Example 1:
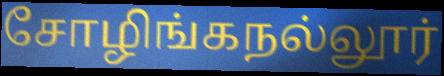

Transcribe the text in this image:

சோழிங்கநல்லூர்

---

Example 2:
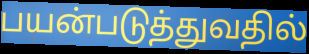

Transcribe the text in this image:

பயன்படுத்துவதில்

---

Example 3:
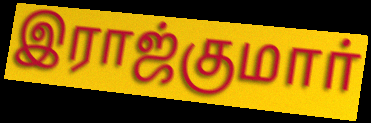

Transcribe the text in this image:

இராஜ்குமார்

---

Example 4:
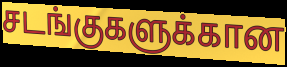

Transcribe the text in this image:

சடங்குகளுக்கான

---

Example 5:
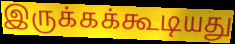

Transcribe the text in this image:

இருக்கக்கூடியது